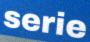
serie